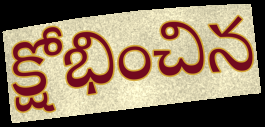
క్షోభించిన